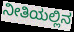
ನೀತಿಯಲ್ಲಿನ